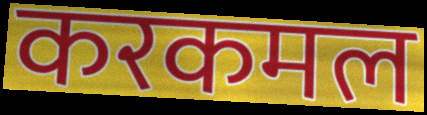
करकमल